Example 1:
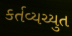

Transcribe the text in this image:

કર્તવ્યચ્યુત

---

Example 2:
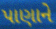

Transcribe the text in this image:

પાણાને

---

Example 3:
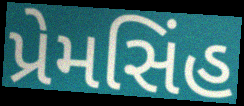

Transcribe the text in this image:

પ્રેમસિંહ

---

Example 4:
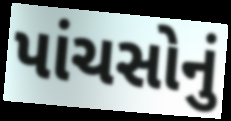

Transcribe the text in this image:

પાંચસોનું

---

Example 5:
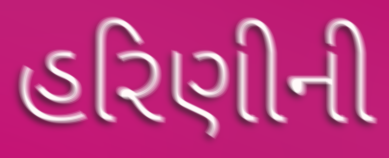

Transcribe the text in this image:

હરિણીની